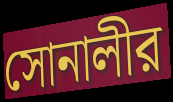
সোনালীর